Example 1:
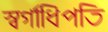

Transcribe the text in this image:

স্বর্গাধিপতি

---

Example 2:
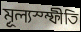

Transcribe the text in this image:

মূল্যস্ম্ফীতি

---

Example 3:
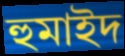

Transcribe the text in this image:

হুমাইদ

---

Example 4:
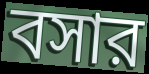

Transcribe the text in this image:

বসার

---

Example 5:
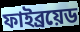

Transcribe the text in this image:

ফাইব্রয়েড